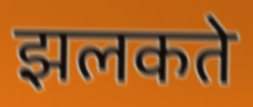
झलकते